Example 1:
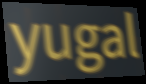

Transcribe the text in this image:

yugal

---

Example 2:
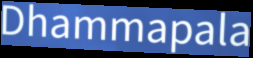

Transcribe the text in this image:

Dhammapala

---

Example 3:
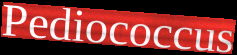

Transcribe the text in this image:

Pediococcus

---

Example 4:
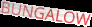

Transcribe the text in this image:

BUNGALOW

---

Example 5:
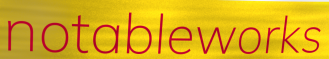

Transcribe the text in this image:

notableworks